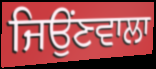
ਜਿਉਂਣਵਾਲਾ